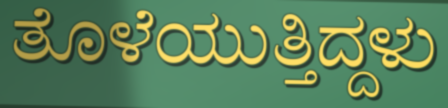
ತೊಳೆಯುತ್ತಿದ್ದಳು